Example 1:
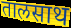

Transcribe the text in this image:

तालसाथ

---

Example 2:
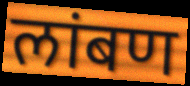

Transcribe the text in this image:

लांबण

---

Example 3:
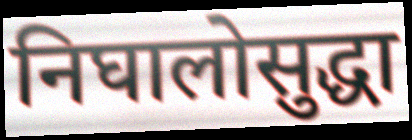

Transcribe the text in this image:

निघालोसुद्धा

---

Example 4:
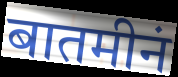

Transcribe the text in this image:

बातमीनं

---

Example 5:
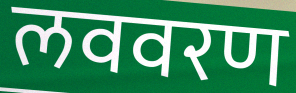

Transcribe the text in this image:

लववरण